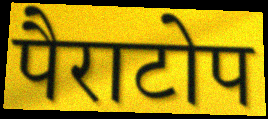
पैराटोप